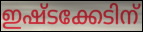
ഇഷ്ടക്കേടിന്